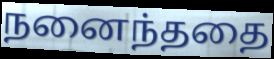
நனைந்ததை